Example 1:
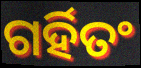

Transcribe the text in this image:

ଗର୍ହିତଂ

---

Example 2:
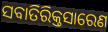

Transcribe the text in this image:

ସବାତିରିକ୍ତସାରେଣ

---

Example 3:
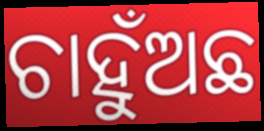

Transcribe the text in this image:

ଚାହୁଁଅଛ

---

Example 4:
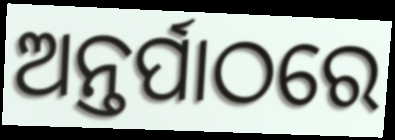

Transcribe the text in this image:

ଅନ୍ତର୍ପାଠରେ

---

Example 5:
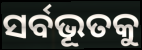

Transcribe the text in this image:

ସର୍ବଭୂତକୁ